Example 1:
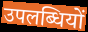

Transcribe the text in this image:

उपलब्धियों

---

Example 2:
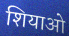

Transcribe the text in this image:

शियाओ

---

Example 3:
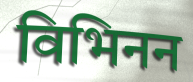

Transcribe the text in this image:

विभिनन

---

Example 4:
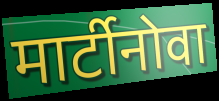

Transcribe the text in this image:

मार्टीनोवा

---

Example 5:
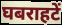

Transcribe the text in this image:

घबराहटें